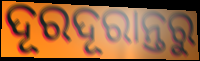
ଦୂରଦୂରାନ୍ତରୁ